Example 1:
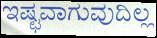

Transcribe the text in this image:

ಇಷ್ಟವಾಗುವುದಿಲ್ಲ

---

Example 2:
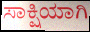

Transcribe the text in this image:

ಸಾಕ್ಷಿಯಾಗಿ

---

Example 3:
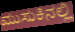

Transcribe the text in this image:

ಮುಸುಕಿನಲ್ಲಿ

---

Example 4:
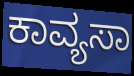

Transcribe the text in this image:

ಕಾವ್ಯಸಾ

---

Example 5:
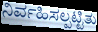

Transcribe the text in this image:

ನಿರ್ವಹಿಸಲ್ಪಟ್ಟಿತು